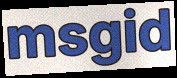
msgid